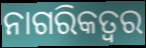
ନାଗରିକତ୍ଵର